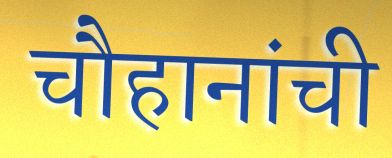
चौहानांची